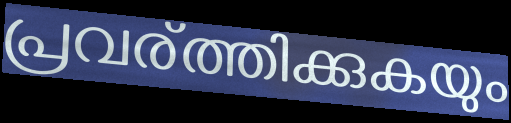
പ്രവര്ത്തിക്കുകയും